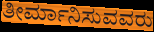
ತೀರ್ಮಾನಿಸುವವರು